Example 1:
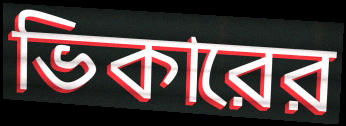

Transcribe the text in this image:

ভিকারের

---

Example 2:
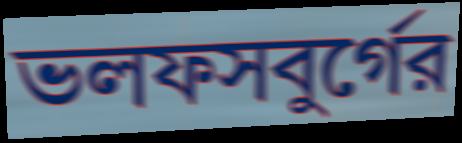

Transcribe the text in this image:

ভলফসবুর্গের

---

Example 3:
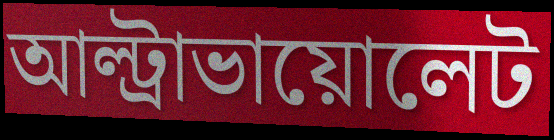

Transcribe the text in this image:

আল্ট্রাভায়োলেট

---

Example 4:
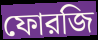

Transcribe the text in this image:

ফোরজি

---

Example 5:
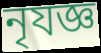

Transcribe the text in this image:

নৃযজ্ঞ